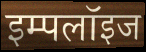
इम्पलॉइज